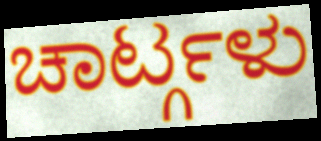
ಚಾರ್ಟ್ಗಳು